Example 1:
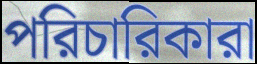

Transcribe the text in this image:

পরিচারিকারা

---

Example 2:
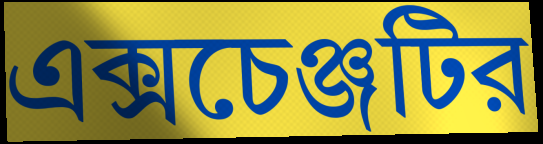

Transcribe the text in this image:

এক্সচেঞ্জটির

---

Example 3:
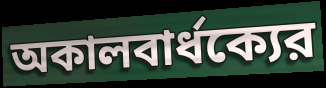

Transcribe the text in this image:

অকালবার্ধক্যের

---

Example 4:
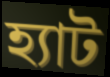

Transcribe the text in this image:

হ্যাট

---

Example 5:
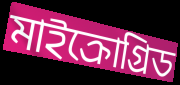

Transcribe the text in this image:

মাইক্রোগ্রিড